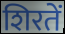
शिरतें